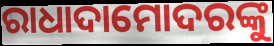
ରାଧାଦାମୋଦରଙ୍କୁ